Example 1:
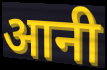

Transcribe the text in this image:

आनी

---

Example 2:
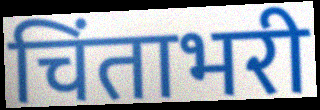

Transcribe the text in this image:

चिंताभरी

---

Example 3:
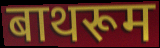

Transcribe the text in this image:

बाथरूम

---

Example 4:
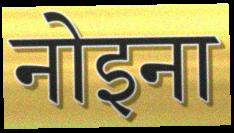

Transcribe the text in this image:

नोइना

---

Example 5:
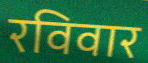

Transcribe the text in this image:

रविवार